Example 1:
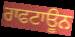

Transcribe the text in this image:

ਰਾਫਟਾਊਨ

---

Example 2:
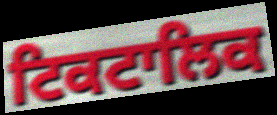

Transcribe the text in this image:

ਟਿਕਟਾਲਿਕ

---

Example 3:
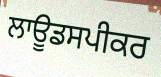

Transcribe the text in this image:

ਲਾਊਡਸਪੀਕਰ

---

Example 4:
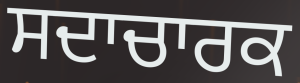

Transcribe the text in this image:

ਸਦਾਚਾਰਕ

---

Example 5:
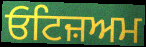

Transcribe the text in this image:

ਓਟਿਜ਼ਅਮ